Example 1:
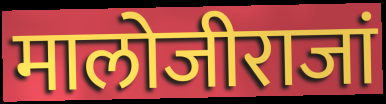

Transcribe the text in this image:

मालोजीराजां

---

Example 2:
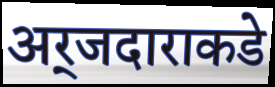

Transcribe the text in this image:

अर्जदाराकडे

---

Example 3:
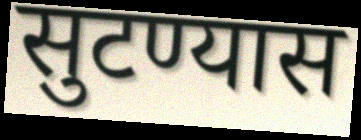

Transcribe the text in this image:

सुटण्यास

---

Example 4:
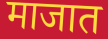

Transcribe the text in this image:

माजात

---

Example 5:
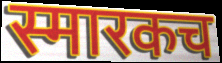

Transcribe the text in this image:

स्मारकच